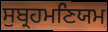
ਸੁਬ੍ਰਹਮਣਿਯਮ